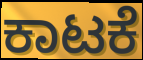
ಕಾಟಕೆ